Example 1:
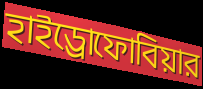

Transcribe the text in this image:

হাইড্রোফোবিয়ার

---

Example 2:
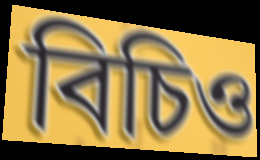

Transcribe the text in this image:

বিচিও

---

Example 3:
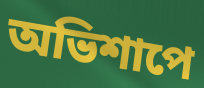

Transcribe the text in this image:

অভিশাপে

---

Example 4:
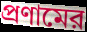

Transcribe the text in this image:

প্রণামের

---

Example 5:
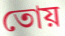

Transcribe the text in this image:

তোয়